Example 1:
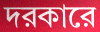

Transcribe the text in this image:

দরকারে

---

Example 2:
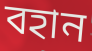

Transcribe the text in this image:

বহান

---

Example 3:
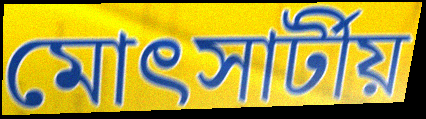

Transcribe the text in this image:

মোৎসার্টীয়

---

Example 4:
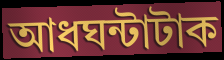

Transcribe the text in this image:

আধঘন্টাটাক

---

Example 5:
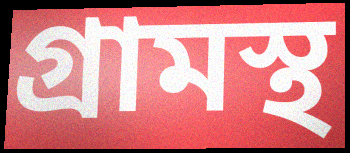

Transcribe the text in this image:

গ্রামস্থ